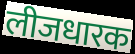
लीजधारक